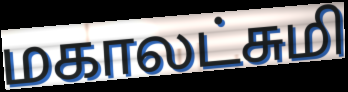
மகாலட்சுமி